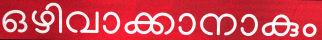
ഒഴിവാക്കാനാകും